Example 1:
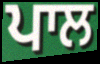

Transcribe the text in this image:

ਪਾਲ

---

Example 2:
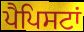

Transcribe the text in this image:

ਪੈਪਿਸਟਾਂ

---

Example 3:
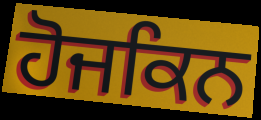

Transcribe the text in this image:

ਹੋਜਕਿਨ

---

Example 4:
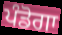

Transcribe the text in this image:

ਪੰਡੋਗਾ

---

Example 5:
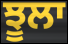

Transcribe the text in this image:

ਝੂਲਾ